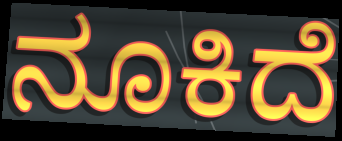
ನೂಕಿದೆ